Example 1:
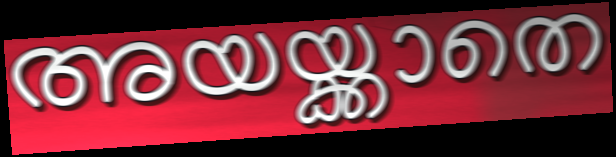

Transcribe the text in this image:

അയയ്ക്കാതെ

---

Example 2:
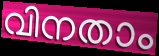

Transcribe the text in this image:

വിനതാം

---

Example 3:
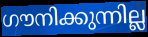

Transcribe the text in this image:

ഗൗനിക്കുന്നില്ല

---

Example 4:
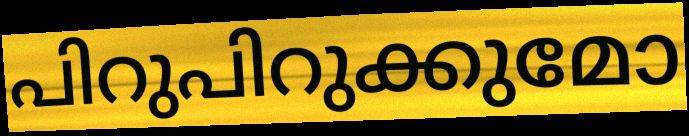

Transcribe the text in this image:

പിറുപിറുക്കുമോ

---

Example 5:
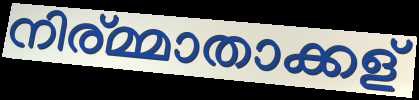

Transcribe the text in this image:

നിര്മ്മാതാക്കള്